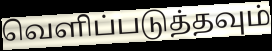
வெளிப்படுத்தவும்